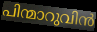
പിന്മാറുവിൻ